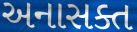
અનાસક્ત